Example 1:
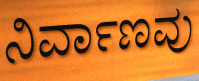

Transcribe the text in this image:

ನಿರ್ವಾಣವು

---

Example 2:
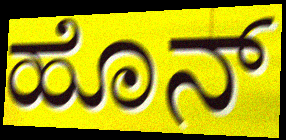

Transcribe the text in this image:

ಹೊನ್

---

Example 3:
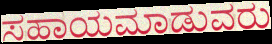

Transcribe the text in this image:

ಸಹಾಯಮಾಡುವರು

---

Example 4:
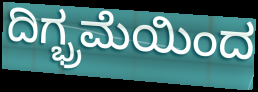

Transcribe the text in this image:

ದಿಗ್ಭ್ರಮೆಯಿಂದ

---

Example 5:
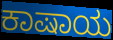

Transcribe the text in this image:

ಕಾಷಾಯ